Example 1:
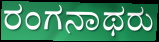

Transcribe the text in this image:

ರಂಗನಾಥರು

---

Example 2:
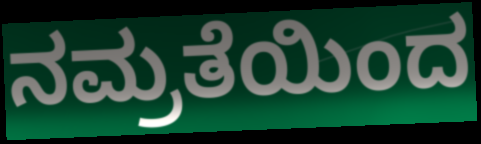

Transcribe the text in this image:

ನಮ್ರತೆಯಿಂದ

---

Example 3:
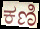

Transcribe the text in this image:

ಕಣಿ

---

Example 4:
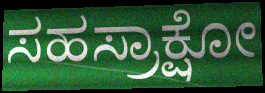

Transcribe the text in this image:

ಸಹಸ್ರಾಕ್ಷೋ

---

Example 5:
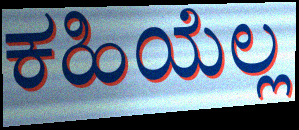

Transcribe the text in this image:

ಕಹಿಯೆಲ್ಲ